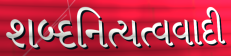
શબ્દનિત્યત્વવાદી